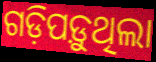
ଗଡ଼ିପଡ଼ୁଥିଲା